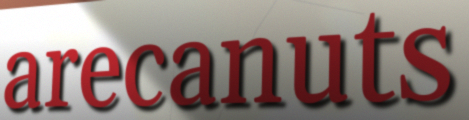
arecanuts